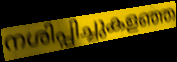
നശിപ്പിച്ചുകളഞ്ഞ